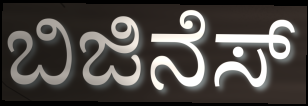
ಬಿಜಿನೆಸ್